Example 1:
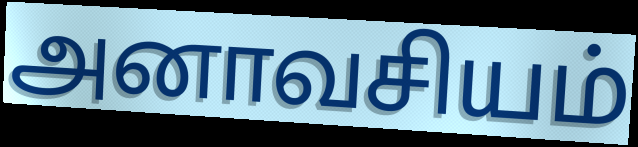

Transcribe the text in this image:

அனாவசியம்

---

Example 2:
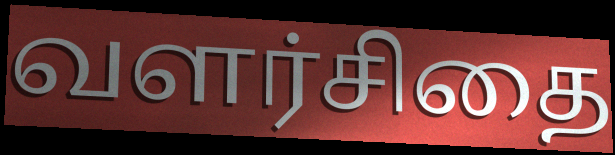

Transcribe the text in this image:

வளர்சிதை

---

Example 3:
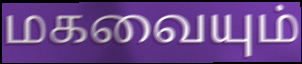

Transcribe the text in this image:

மகவையும்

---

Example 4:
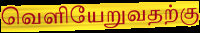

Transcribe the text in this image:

வெளியேறுவதற்கு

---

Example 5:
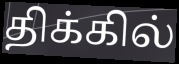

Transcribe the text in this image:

திக்கில்